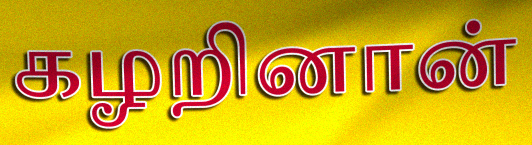
கழறினான்